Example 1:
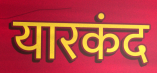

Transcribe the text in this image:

यारकंद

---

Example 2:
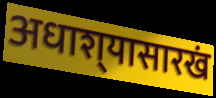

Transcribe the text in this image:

अधाश्यासारखं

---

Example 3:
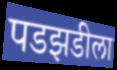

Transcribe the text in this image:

पडझडीला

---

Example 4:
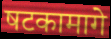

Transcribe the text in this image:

षटकामागे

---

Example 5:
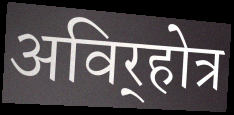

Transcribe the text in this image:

अविर्होत्र